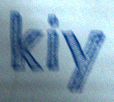
kiy